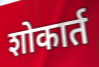
शोकार्त